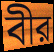
বীর